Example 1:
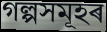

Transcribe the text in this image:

গল্পসমূহৰ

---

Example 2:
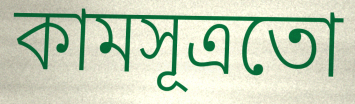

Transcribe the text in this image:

কামসূত্ৰতো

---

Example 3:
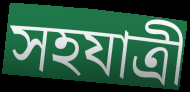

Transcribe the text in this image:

সহযাত্ৰী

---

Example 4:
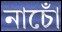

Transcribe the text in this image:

নাচোঁ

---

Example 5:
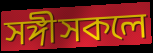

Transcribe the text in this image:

সঙ্গীসকলে